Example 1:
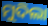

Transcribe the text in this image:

ମୁଦିଲା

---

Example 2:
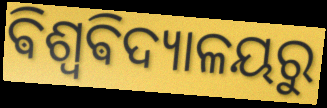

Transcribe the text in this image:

ଵିଶ୍ୱଵିଦ୍ୟାଳୟରୁ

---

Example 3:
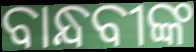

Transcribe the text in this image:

ବାନ୍ଧବୀଙ୍କ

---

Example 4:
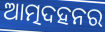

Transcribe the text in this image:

ଆତ୍ମଦହନର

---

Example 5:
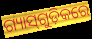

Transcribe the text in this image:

ଗ୍ୟାସ୍‌ଗୁଡ଼ିକରେ